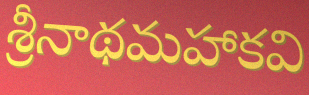
శ్రీనాథమహాకవి